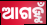
ଆଗହୁଁ